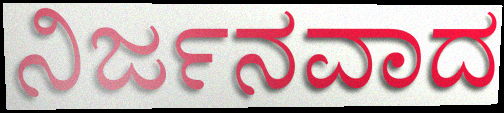
ನಿರ್ಜನವಾದ